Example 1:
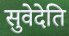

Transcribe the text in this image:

सुवेदेति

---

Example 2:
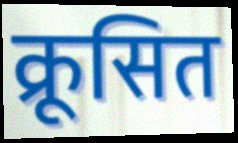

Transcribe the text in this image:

क्रूसित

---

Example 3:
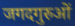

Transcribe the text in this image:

जगदगुरुओं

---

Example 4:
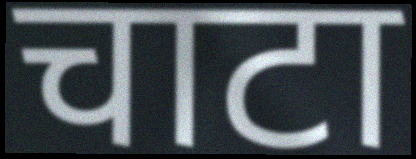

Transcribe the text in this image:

चाटा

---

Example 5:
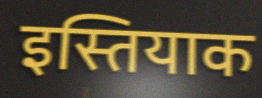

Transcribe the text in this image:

इस्तियाक